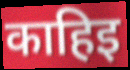
काहिइ